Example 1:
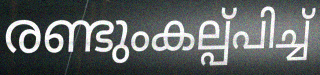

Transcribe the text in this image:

രണ്ടുംകല്പ്പിച്ച്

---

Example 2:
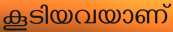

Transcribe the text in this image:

കൂടിയവയാണ്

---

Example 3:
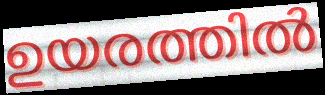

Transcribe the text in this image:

ഉയരത്തിൽ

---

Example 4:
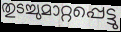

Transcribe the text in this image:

തുടച്ചുമാറ്റപ്പെട്ടു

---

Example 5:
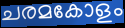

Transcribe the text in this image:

ചരമകോളം